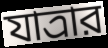
যাত্রার